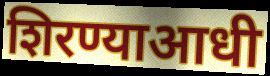
शिरण्याआधी